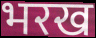
भरख